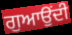
ਗੁਆਉਂਦੀ